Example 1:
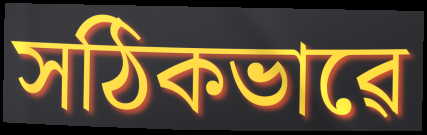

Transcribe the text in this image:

সঠিকভাৱে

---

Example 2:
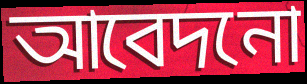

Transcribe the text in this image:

আবেদনো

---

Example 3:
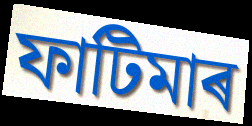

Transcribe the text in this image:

ফাটিমাৰ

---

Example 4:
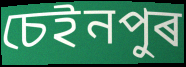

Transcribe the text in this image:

চেইনপুৰ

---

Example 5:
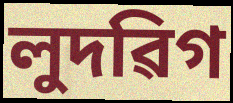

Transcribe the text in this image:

লুদৱিগ